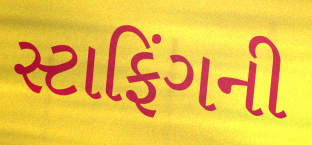
સ્ટાફિંગની